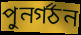
পুনৰ্গঠন